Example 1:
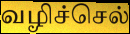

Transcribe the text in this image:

வழிச்செல்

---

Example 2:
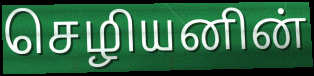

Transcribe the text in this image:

செழியனின்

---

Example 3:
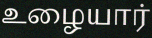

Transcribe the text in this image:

உழையார்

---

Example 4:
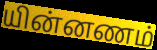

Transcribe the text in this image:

யின்னணம்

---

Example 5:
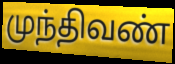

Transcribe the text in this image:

முந்திவண்